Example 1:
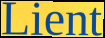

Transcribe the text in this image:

Lient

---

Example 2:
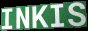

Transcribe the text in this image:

INKIS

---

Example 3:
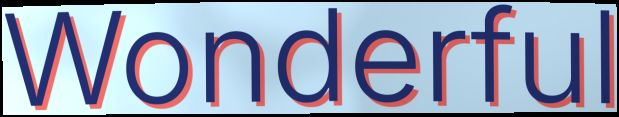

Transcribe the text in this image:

Wonderful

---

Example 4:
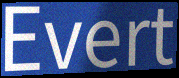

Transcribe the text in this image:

Evert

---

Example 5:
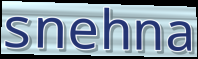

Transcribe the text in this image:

snehna